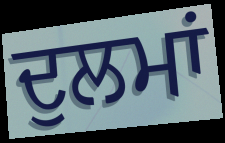
ਦੁਲਮਾਂ